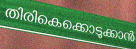
തിരികെക്കൊടുക്കാൻ